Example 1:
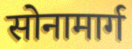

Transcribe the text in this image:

सोनामार्ग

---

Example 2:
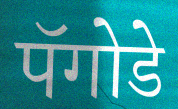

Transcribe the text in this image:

पॅगोडे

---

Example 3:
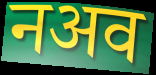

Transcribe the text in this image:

नअव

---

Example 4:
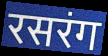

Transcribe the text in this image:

रसरंग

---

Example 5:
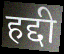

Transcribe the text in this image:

हद्दी